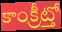
కాంక్రీట్తో